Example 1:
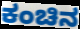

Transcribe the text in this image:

ಕಂಚಿನ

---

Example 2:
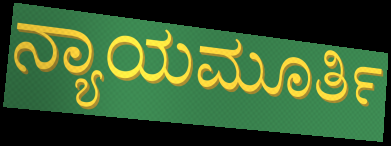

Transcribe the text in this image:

ನ್ಯಾಯಮೂರ್ತಿ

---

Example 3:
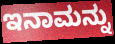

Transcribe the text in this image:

ಇನಾಮನ್ನು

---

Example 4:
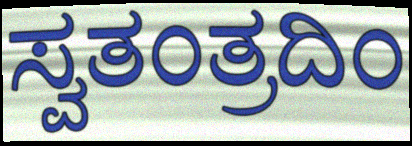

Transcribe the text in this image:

ಸ್ವತಂತ್ರದಿಂ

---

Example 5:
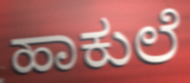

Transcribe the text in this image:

ಹಾಕುಲೆ